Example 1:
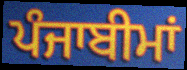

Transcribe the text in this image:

ਪੰਜਾਬੀਮਾਂ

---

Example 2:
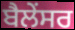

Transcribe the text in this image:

ਬੈਲੇਂਸਰ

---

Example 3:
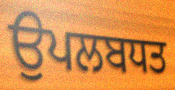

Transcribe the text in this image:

ਉਪਲਬਧਤ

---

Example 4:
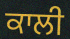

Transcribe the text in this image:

ਕਾਲੀ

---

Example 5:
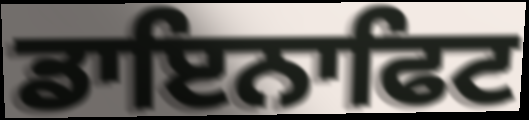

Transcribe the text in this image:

ਡਾਇਨਾਫਿਟ